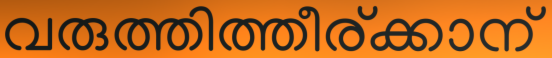
വരുത്തിത്തീര്ക്കാന്